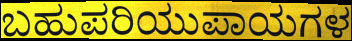
ಬಹುಪರಿಯುಪಾಯಗಳ